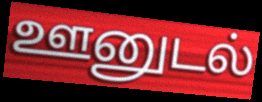
ஊனுடல்